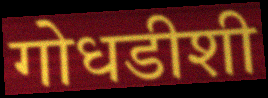
गोधडीशी